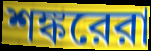
শঙ্করেরা